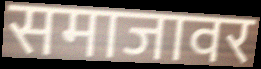
समाजावर